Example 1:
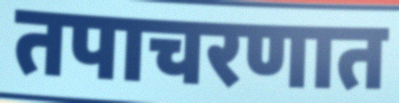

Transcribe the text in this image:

तपाचरणात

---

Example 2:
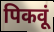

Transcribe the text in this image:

पिकवूं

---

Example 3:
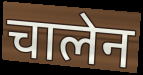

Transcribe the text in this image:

चालेन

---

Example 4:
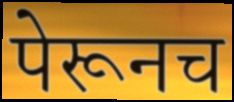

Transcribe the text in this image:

पेरूनच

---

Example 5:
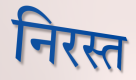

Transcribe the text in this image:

निरस्त